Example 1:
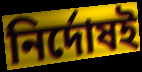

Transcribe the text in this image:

নির্দোষই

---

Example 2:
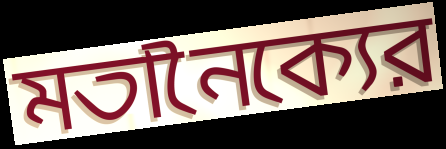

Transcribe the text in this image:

মতানৈক্যের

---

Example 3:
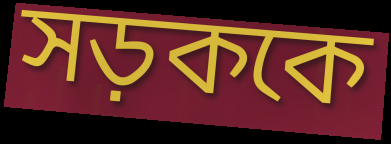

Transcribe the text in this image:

সড়ককে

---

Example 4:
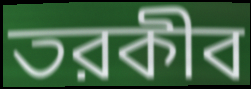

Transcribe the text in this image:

তরকীব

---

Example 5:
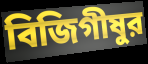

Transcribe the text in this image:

বিজিগীষুর